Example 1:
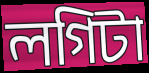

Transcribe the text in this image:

লগিটা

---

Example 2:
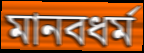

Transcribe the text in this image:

মানবধর্ম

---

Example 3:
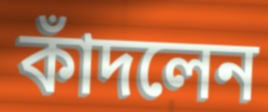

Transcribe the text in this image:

কাঁদলেন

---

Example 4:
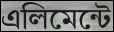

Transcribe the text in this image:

এলিমেন্টে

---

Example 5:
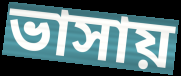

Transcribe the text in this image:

ভাসায়